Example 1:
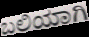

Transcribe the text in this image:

ಬಲಿಯಾಗಿ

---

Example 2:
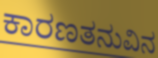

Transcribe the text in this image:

ಕಾರಣತನುವಿನ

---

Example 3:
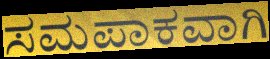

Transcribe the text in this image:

ಸಮಪಾಕವಾಗಿ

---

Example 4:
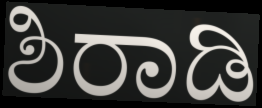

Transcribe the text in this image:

ಶಿರಾಡಿ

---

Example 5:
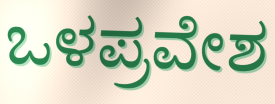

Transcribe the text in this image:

ಒಳಪ್ರವೇಶ